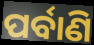
ପର୍ବାଣି